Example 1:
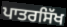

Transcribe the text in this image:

ਪਾਤਰਸਿੱਖ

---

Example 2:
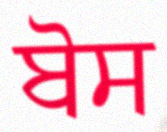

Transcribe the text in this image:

ਬੋਸ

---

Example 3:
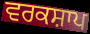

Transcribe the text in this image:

ਵਰਕਸ਼ਾਪ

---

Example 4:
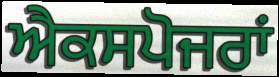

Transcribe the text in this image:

ਐਕਸਪੋਜਰਾਂ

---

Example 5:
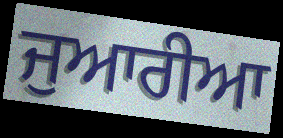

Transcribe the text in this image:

ਜੁਆਰੀਆ